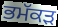
ਭਮੱਕੜ